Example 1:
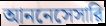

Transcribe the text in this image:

আননেসেসারি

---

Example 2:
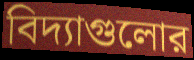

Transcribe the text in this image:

বিদ্যাগুলোর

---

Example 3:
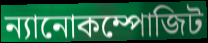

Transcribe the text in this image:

ন্যানোকম্পোজিট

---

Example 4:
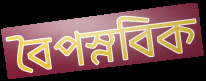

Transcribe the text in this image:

বৈপস্নবিক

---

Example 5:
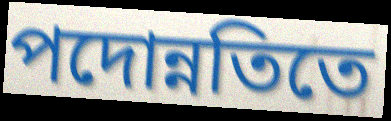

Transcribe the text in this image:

পদোন্নতিতে